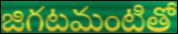
జిగటమంటితో